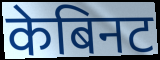
केबिनट